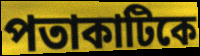
পতাকাটিকে